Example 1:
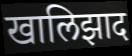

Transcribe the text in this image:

खालिझाद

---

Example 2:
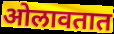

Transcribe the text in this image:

ओलावतात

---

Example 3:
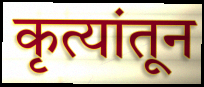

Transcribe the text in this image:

कृत्यांतून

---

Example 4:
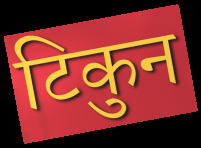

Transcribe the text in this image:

टिकुन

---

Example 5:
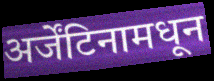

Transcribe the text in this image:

अर्जेंटिनामधून